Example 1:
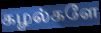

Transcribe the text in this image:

கழல்களே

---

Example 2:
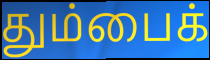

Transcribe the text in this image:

தும்பைக்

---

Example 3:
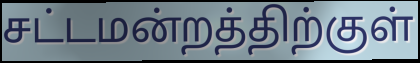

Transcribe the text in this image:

சட்டமன்றத்திற்குள்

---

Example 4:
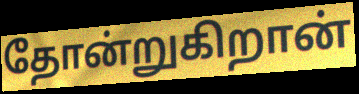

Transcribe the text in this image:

தோன்றுகிறான்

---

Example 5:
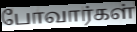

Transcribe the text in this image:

போவார்கள்